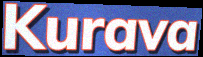
Kurava